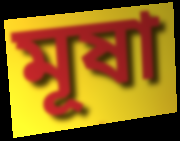
মূষা